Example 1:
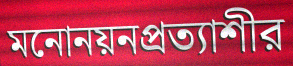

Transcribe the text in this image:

মনোনয়নপ্রত্যাশীর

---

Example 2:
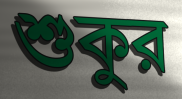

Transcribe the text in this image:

শুকুর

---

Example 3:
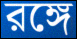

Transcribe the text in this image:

রঙ্গে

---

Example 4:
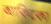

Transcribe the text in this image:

আকিকো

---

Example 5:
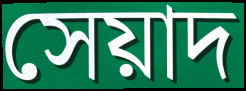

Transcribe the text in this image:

সেয়াদ